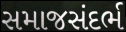
સમાજસંદર્ભ